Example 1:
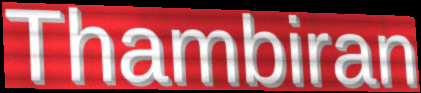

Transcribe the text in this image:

Thambiran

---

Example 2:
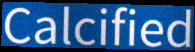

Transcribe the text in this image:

Calcified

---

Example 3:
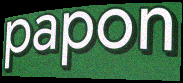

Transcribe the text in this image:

papon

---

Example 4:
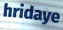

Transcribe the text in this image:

hridaye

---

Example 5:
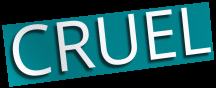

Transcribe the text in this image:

CRUEL